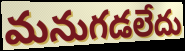
మనుగడలేదు